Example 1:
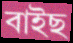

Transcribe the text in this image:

বাইছ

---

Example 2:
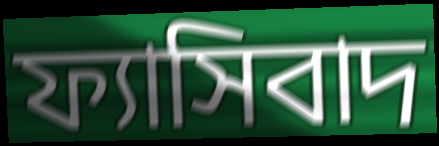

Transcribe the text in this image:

ফ্যাসিবাদ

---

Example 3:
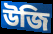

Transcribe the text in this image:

উজি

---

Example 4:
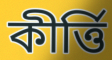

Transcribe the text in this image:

কীৰ্ত্তি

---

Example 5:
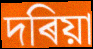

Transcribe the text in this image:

দৰিয়া